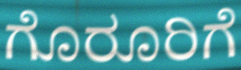
ಗೊರೂರಿಗೆ